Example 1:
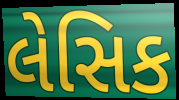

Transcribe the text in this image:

લેસિક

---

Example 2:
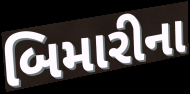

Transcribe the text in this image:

બિમારીના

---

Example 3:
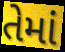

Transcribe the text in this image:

તેમાં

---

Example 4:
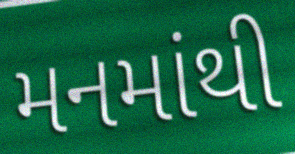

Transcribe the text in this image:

મનમાંથી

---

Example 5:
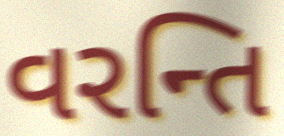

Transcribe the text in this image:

વરન્તિ